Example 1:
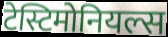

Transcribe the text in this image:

टेस्टिमोनियल्स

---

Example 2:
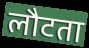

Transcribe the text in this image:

लौटता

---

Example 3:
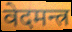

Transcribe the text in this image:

वेदमन्त्र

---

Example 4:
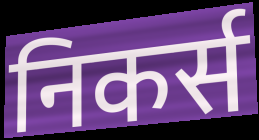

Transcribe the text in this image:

निकर्स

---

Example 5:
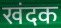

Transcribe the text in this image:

खंदक